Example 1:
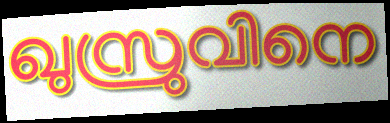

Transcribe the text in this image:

ഖുസ്രുവിനെ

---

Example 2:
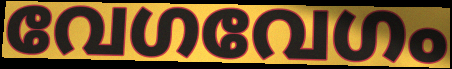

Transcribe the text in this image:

വേഗവേഗം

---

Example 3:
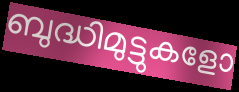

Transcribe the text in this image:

ബുദ്ധിമുട്ടുകളോ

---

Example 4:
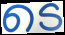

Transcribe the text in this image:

ടെ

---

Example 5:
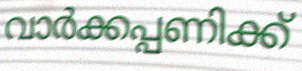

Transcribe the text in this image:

വാർക്കപ്പണിക്ക്